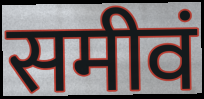
समीवं